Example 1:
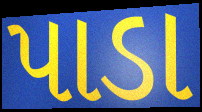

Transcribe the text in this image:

પાડા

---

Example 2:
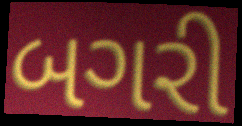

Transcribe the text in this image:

બગરી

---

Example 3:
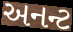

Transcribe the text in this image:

અનન્ટ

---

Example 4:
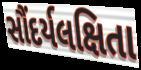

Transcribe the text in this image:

સૌંદર્યલક્ષિતા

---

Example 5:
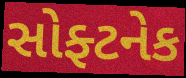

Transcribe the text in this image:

સોફ્ટનેક